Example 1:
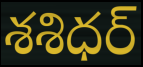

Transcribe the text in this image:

శశిధర్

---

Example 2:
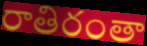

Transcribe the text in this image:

రాతిరంతా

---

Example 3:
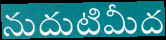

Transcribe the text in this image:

నుదుటిమీద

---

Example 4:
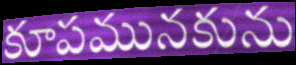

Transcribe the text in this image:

కూపమునకును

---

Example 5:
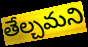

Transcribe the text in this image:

తేల్చమని